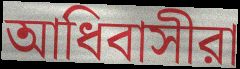
আধিবাসীরা